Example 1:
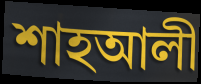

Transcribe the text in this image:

শাহআলী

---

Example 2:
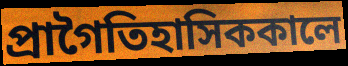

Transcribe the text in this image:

প্রাগৈতিহাসিককালে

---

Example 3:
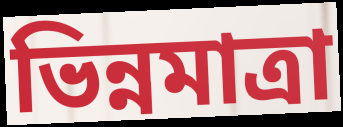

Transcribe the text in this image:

ভিন্নমাত্রা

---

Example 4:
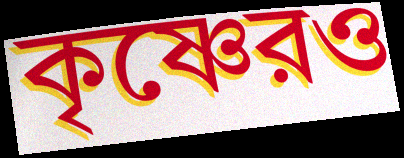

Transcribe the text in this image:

কৃষ্ণেরও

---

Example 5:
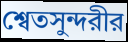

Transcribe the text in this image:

শ্বেতসুন্দরীর